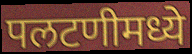
पलटणीमध्ये